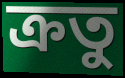
ক্রতু